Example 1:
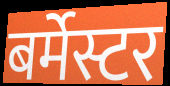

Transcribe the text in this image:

बर्मेस्टर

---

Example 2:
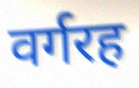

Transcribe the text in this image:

वर्गरह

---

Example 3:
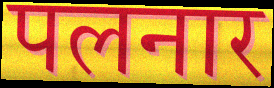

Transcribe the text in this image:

पलनार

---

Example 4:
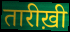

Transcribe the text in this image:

तारीख़ी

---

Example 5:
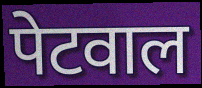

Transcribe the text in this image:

पेटवाल